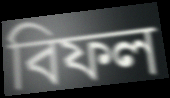
বিফল